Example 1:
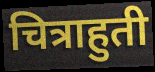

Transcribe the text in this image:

चित्राहुती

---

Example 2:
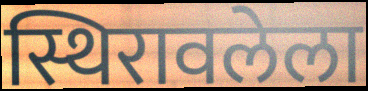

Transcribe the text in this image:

स्थिरावलेला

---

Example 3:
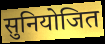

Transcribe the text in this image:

सुनियोजित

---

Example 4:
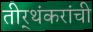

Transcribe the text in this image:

तीर्थंकरांची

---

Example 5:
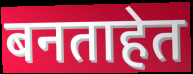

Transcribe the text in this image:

बनताहेत